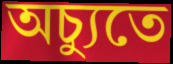
অচ্যুতে